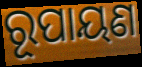
ରୂପାୟଣ